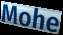
Mohe